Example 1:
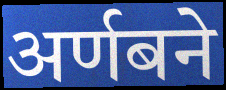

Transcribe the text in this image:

अर्णबने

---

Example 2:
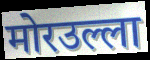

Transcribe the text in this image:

मोरउल्ला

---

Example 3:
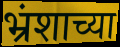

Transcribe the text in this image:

भ्रंशाच्या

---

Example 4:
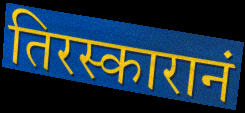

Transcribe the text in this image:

तिरस्कारानं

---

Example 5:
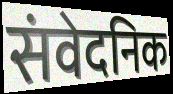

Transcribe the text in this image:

संवेदनिक